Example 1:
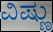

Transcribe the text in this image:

ವಿಷ್ಣು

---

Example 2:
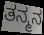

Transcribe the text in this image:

ತನ್ಮನ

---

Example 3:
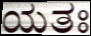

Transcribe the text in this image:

ಯತಃ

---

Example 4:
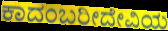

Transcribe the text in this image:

ಕಾದಂಬರೀದೇವಿಯ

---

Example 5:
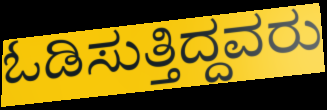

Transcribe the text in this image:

ಓಡಿಸುತ್ತಿದ್ದವರು